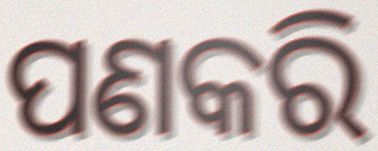
ପଣକରି